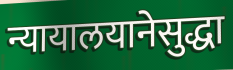
न्यायालयानेसुद्धा